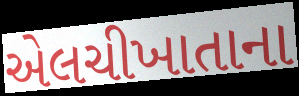
એલચીખાતાના